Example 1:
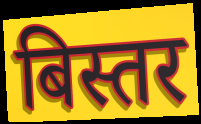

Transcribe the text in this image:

बिस्तर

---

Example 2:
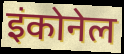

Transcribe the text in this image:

इंकोनेल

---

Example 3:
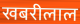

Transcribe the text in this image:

खबरीलाल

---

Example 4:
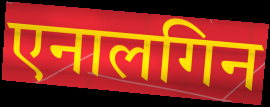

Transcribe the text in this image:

एनालगिन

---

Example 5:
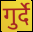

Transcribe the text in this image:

गुर्दे